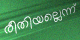
രീതിയല്ലെന്ന്